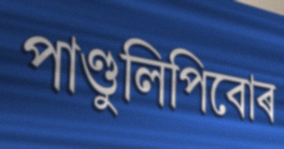
পাণ্ডুলিপিবোৰ